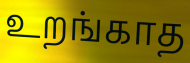
உறங்காத